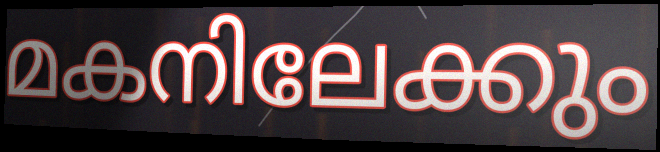
മകനിലേക്കും